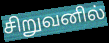
சிறுவனில்